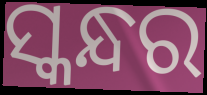
ସ୍କନ୍ଧର